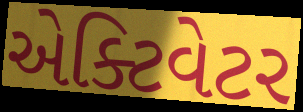
એક્ટિવેટર